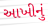
આખીનું